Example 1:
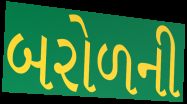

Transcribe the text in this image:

બરોળની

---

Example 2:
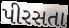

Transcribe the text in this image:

પીરસતા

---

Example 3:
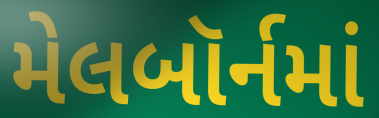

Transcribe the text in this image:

મેલબૉર્નમાં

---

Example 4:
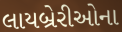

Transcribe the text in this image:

લાયબ્રેરીઓના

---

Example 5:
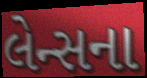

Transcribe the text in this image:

લેન્સના